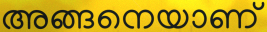
അങ്ങനെയാണ്